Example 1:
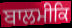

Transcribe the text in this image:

ਬਾਲਮੀਕਿ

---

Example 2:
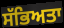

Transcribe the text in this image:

ਸੱਭਿਅਤਾ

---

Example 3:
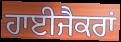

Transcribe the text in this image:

ਹਾਈਜੈਕਰਾਂ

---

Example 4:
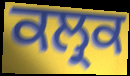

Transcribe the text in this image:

ਕਲ੍ਰਕ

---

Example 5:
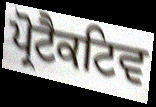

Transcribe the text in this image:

ਪ੍ਰੋਟੈਕਟਿਵ